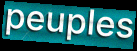
peuples